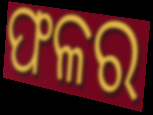
ଫଳର